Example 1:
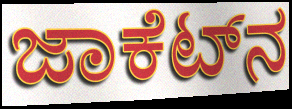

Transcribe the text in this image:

ಜಾಕೆಟ್‌ನ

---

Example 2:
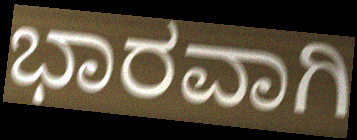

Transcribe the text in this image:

ಭಾರವಾಗಿ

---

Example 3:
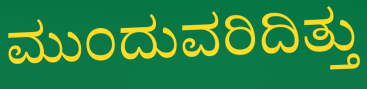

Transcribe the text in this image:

ಮುಂದುವರಿದಿತ್ತು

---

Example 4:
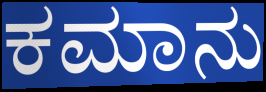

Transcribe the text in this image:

ಕಮಾನು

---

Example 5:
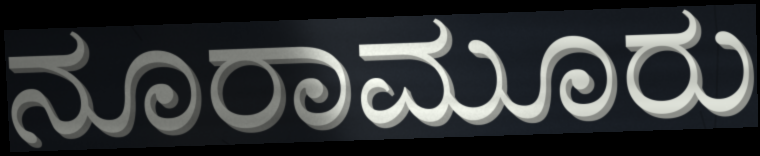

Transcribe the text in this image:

ನೂರಾಮೂರು